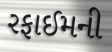
રફાઈમની